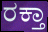
ರಕ್ತಾ